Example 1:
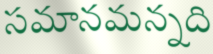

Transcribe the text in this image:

సమానమన్నది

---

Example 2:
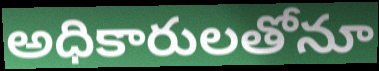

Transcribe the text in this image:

అధికారులతోనూ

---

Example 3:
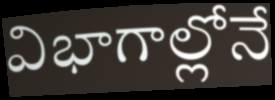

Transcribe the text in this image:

విభాగాల్లోనే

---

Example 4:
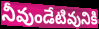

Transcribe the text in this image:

నీవుండేటివునికి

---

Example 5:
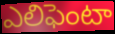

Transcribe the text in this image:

ఎలిఫెంటా